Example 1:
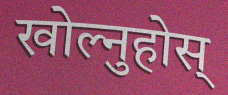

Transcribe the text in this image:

खोल्नुहोस्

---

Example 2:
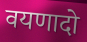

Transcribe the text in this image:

वयणादो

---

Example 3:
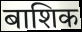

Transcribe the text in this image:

बाशिक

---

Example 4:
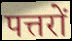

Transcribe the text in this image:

पत्तरों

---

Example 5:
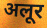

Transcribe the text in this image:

अलूर